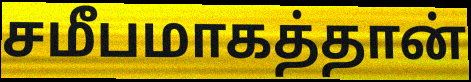
சமீபமாகத்தான்